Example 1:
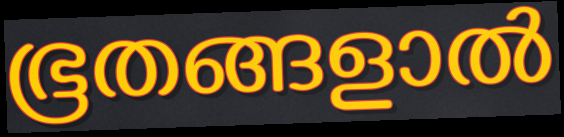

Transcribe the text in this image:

ഭൂതങ്ങളാൽ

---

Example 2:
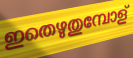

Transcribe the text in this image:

ഇതെഴുതുമ്പോള്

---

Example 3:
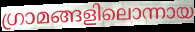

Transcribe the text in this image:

ഗ്രാമങ്ങളിലൊന്നായ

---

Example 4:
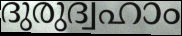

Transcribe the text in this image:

ദുരുദ്വഹാം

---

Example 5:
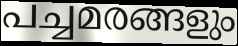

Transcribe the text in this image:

പച്ചമരങ്ങളും